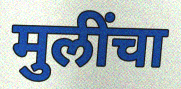
मुलींचा